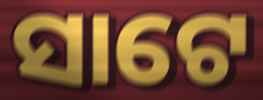
ସାଟେ